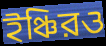
ইঞ্চিরও